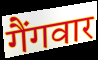
गैंगवार